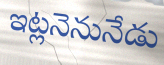
ఇట్లనెనునేడు